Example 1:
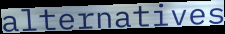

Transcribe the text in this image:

alternatives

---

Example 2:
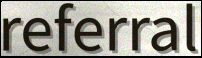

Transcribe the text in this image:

referral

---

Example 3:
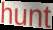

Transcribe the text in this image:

hunt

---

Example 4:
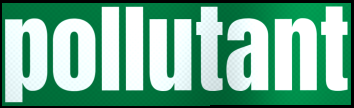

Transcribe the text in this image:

pollutant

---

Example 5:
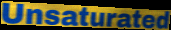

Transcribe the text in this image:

Unsaturated